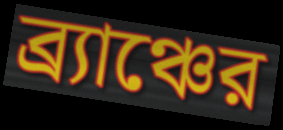
ব্র্যাঞ্চের